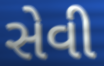
સેવી